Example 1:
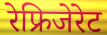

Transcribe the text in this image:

रेफ्रिजेरेट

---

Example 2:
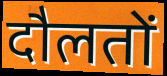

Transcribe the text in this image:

दौलतों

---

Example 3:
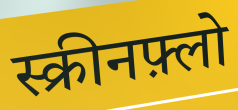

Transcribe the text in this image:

स्क्रीनफ़्लो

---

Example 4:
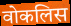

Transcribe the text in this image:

वोकलिस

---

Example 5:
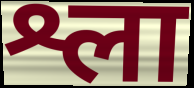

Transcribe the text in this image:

श्ला